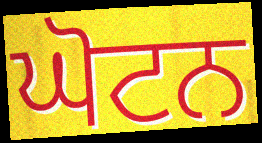
ਘੋਟਨ